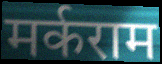
मर्कराम